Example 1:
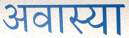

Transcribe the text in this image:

अवास्या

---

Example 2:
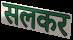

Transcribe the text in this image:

सलकर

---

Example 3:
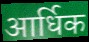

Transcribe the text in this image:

आर्धिक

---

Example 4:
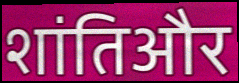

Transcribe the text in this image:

शांतिऔर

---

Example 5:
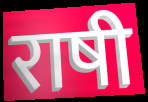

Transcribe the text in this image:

राषी